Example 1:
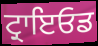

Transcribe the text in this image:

ਟ੍ਰਾਇਓਡ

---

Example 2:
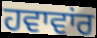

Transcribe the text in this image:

ਹਵਾਵਾਂਰ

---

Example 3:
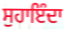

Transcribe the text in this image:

ਸੁਹਾਇੰਦਾ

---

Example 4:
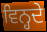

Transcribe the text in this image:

ਵਿਨ੍ਹਦੇ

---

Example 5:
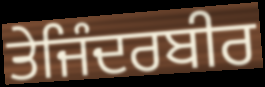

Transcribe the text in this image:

ਤੇਜਿੰਦਰਬੀਰ